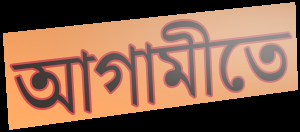
আগামীতে